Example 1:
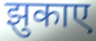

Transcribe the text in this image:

झुकाए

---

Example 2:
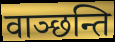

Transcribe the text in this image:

वाञ्छन्ति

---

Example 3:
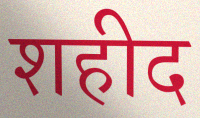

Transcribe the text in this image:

शहीद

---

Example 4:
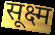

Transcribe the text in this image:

सूक्ष्म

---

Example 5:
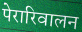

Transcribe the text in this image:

पेरारिवालन